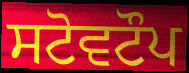
ਸਟੋਵਟੌਪ